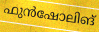
ഫുൻഷോലിങ്